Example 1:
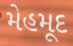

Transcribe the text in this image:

મેહમૂદ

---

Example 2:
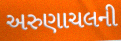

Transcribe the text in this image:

અરુણાચલની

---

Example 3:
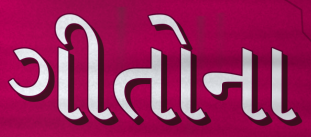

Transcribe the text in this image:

ગીતોના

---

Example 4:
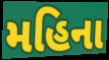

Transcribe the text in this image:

મહિના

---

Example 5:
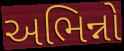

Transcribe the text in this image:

અભિન્નો